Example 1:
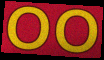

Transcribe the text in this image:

oo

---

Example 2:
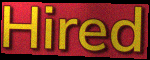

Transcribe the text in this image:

Hired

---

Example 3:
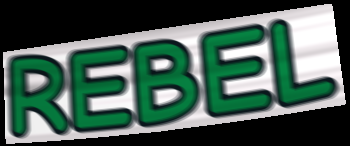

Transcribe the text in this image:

REBEL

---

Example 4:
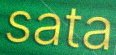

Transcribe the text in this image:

sata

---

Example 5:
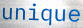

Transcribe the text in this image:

unique